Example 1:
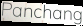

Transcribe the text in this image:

Panchang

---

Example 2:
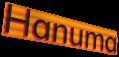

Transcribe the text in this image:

Hanuma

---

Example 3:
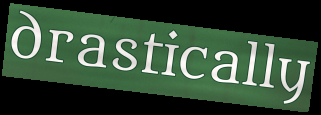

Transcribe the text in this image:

drastically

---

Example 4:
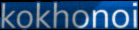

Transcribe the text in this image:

kokhonoi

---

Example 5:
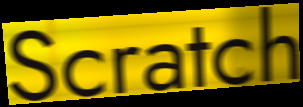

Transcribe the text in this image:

Scratch